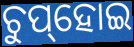
ଚୁପ୍‌ହୋଇ